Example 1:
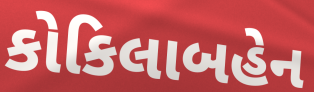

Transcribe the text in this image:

કોકિલાબહેન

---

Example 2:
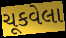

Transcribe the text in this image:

ચૂકવેલા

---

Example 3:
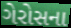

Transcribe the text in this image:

ગેરોસના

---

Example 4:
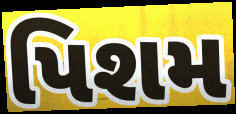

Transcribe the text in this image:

પિશમ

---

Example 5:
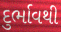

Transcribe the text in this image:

દુર્ભાવથી